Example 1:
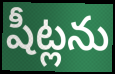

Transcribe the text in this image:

షీట్లను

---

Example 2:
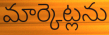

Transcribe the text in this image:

మార్కెట్లను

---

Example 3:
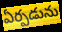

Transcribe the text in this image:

ఏర్పడును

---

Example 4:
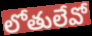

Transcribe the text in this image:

లోతులేవో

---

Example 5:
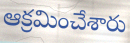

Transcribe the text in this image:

ఆక్రమించేశారు